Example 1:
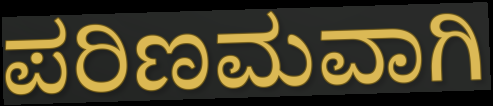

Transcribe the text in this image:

ಪರಿಣಮವಾಗಿ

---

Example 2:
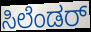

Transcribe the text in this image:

ಸಿಲೆಂಡರ್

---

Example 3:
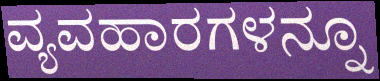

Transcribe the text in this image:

ವ್ಯವಹಾರಗಳನ್ನೂ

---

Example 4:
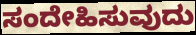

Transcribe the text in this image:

ಸಂದೇಹಿಸುವುದು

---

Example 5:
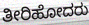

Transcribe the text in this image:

ತೀರಿಹೋದರು